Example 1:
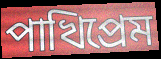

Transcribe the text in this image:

পাখিপ্রেম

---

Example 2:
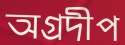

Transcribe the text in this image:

অগ্রদীপ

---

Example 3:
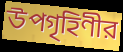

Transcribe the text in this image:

উপগৃহিণীর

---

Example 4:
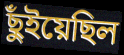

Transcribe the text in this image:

ছুঁইয়েছিল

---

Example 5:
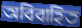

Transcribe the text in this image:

অবিবাহিত